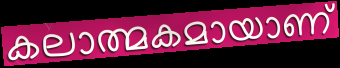
കലാത്മകമായാണ്